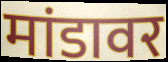
मांडावर